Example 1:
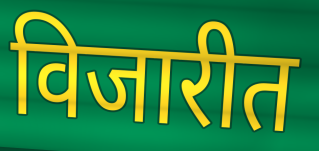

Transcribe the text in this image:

विजारीत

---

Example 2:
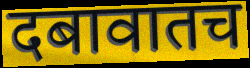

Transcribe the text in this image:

दबावातच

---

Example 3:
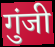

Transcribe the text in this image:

गुंजी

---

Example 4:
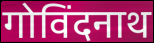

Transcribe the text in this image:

गोविंदनाथ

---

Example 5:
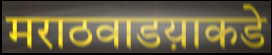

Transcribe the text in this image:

मराठवाडय़ाकडे